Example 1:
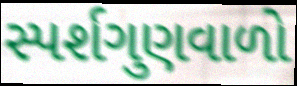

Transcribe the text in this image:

સ્પર્શગુણવાળો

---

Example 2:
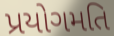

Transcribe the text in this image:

પ્રયોગમતિ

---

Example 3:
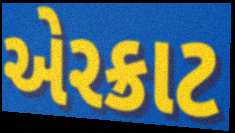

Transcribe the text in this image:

એરક્રાટ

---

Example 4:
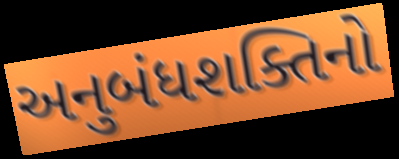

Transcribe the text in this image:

અનુબંધશક્તિનો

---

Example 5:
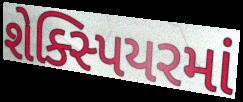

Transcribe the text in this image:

શેક્સ્પિયરમાં